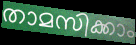
താമസിക്കാം